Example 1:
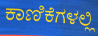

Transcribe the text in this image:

ಕಾಣಿಕೆಗಳಲ್ಲಿ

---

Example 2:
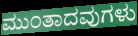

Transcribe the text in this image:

ಮುಂತಾದವುಗಳು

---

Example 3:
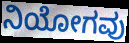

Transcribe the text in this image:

ನಿಯೋಗವು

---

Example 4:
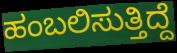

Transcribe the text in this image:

ಹಂಬಲಿಸುತ್ತಿದ್ದೆ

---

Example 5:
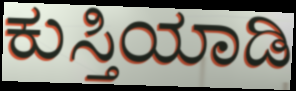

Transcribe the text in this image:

ಕುಸ್ತಿಯಾಡಿ